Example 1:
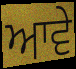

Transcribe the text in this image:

ਆਵੇ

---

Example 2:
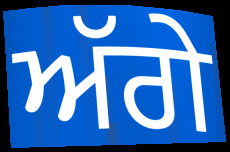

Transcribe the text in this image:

ਅੱਗੇ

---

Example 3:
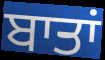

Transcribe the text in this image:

ਬਾਤਾਂ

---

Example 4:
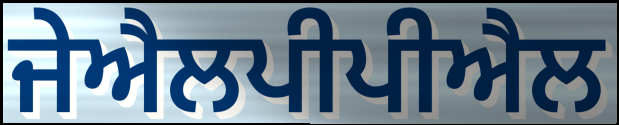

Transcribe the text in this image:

ਜੇਐਲਪੀਪੀਐਲ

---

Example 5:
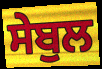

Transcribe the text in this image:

ਸੇਬੁਲ